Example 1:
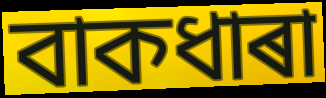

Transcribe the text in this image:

বাকধাৰা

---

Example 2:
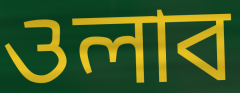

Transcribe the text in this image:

ওলাব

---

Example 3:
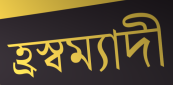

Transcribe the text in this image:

হ্ৰস্বম্যাদী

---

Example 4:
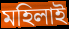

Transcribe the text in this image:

মহিলাই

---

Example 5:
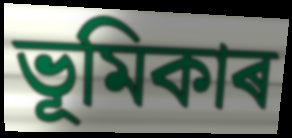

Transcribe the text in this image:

ভূমিকাৰ